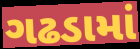
ગઢડામાં